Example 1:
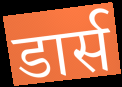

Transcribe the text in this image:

डार्स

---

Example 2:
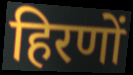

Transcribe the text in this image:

हिरणों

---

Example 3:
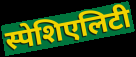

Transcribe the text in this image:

स्पेशिएलिटी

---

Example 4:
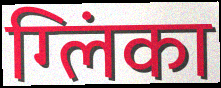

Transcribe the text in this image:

ग्लिंका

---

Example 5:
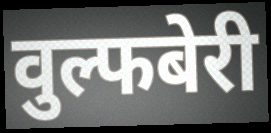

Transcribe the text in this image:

वुल्फबेरी